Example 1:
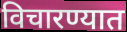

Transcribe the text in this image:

विचारण्यात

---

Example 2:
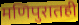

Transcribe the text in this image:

मणिपुरातही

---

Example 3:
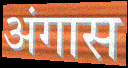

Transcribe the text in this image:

अंगास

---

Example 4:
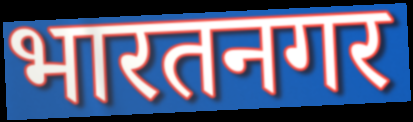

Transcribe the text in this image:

भारतनगर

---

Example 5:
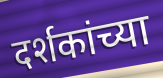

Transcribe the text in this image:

दर्शकांच्या